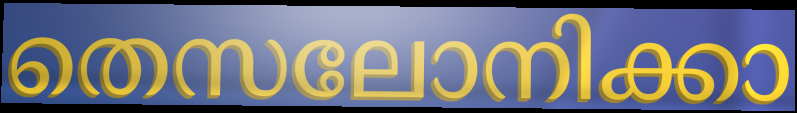
തെസലോനിക്കാ